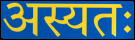
अस्यतः